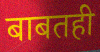
बाबतही